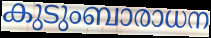
കുടുംബാരാധന